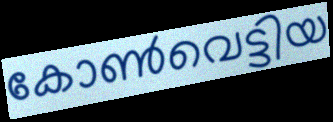
കോൺവെട്ടിയ